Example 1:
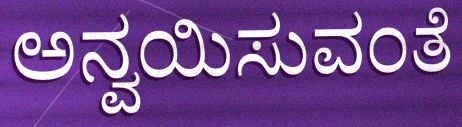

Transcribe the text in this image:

ಅನ್ವಯಿಸುವಂತೆ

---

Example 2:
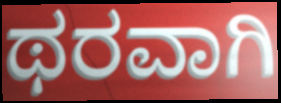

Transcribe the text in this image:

ಥರವಾಗಿ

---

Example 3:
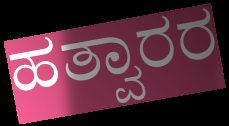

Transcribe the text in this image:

ಹತ್ವಾರರ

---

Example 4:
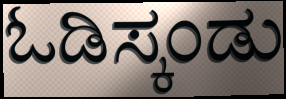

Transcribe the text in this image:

ಓಡಿಸ್ಕಂಡು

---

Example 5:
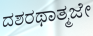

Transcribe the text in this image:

ದಶರಥಾತ್ಮಜೇ